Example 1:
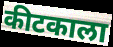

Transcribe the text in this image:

कीटकाला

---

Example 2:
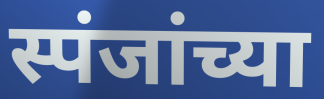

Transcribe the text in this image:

स्पंजांच्या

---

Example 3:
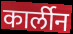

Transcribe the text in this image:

कार्लीन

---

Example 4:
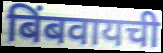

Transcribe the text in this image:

बिंबवायची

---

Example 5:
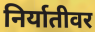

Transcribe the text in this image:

निर्यातीवर